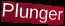
Plunger